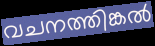
വചനത്തിങ്കൽ